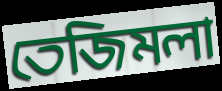
তেজিমলা